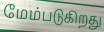
மேம்படுகிறது